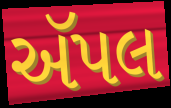
ઍપલ